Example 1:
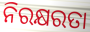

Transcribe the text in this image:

ନିରକ୍ଷରତା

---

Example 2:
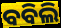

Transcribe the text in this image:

ବବିଲି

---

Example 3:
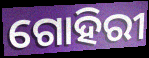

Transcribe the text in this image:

ଗୋହିରୀ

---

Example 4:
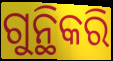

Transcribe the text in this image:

ଗୁନ୍ଥିକରି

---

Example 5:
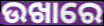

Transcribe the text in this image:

ଉଖାରେ